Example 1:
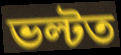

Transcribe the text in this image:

ভল্টত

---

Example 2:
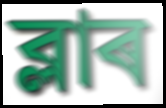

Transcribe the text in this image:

ব্লাৰ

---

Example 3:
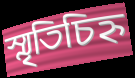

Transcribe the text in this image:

স্মৃতিচিহ্ন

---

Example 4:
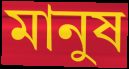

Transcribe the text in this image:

মানুষ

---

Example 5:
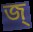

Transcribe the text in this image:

জ্